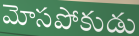
మోసపోకుడు